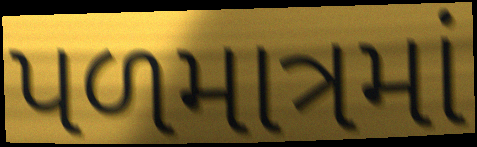
પળમાત્રમાં